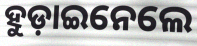
ହୁଡ଼ାଇନେଲେ